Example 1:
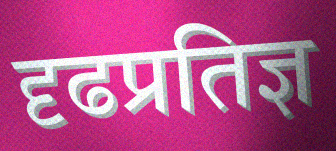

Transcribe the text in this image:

दृढप्रतिज्ञ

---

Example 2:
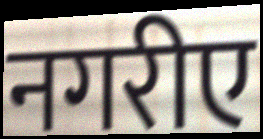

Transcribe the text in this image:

नगरीए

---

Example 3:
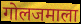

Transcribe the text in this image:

गोलजमाला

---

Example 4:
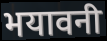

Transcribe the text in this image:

भयावनी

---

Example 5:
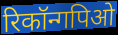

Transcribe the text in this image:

रिकॉन्गपिओ